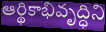
ఆర్థికాభివృద్ధిని